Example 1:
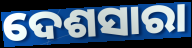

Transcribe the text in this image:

ଦେଶସାରା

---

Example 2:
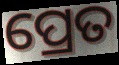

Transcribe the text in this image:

ପ୍ରେତ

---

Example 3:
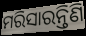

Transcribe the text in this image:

ମରିସାରନ୍ତିଣି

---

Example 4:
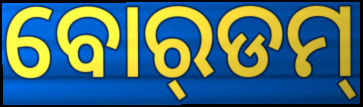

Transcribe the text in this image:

ବୋର୍‌ଡମ୍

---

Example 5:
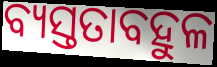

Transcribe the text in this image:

ବ୍ୟସ୍ତତାବହୁଳ